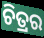
ଚିତ୍ରର